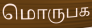
மொருபக